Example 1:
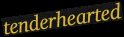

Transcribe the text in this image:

tenderhearted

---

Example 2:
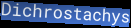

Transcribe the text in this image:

Dichrostachys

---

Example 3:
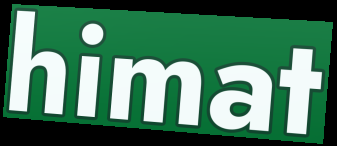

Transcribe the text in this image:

himat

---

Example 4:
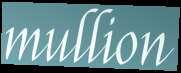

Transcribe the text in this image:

mullion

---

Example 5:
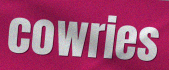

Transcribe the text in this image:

cowries